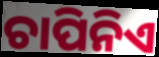
ଚାପିନିଏ